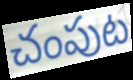
చంపుట